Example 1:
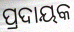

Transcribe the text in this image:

ପ୍ରଦାୟକ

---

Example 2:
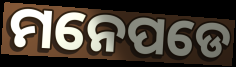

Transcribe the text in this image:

ମନେପଡେ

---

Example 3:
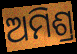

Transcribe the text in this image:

ଅମିଶ୍ର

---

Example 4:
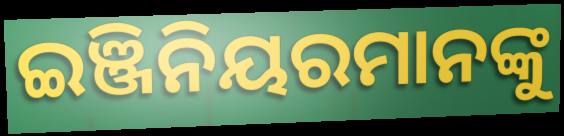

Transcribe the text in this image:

ଇଞ୍ଜିନିୟରମାନଙ୍କୁ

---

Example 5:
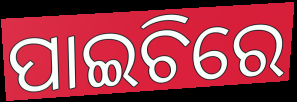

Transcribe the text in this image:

ପାଇଚିରେ